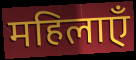
महिलाएँ